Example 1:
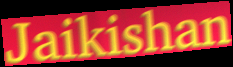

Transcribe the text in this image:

Jaikishan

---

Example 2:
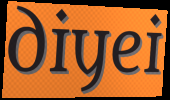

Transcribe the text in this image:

diyei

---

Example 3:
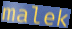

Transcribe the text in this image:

malek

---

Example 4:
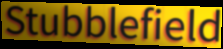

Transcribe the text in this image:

Stubblefield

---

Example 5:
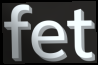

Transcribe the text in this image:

fet